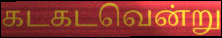
கடகடவென்று